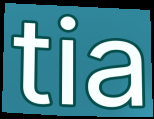
tia